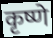
कृष्णे